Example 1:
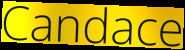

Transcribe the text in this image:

Candace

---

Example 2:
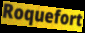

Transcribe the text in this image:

Roquefort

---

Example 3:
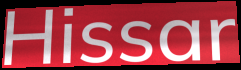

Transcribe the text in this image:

Hissar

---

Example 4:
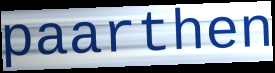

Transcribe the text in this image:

paarthen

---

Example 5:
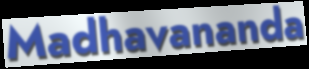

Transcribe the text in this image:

Madhavananda